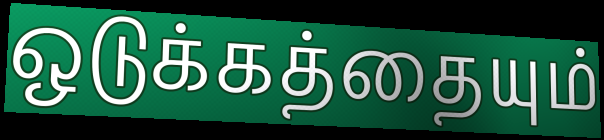
ஒடுக்கத்தையும்